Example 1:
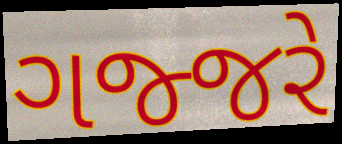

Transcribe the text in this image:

ગજ્જરે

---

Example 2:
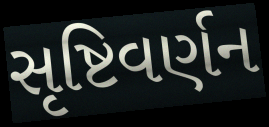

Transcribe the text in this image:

સૃષ્ટિવર્ણન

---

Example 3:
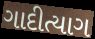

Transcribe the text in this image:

ગાદીત્યાગ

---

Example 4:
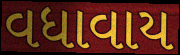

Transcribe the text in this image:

વધાવાય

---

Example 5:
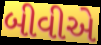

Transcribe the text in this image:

બીવીએ